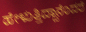
ಹೇಳುತ್ತಿದ್ದಾನೆಂದರೆ